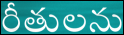
రీతులను